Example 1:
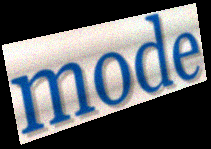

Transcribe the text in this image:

mode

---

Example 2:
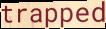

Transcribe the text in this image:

trapped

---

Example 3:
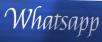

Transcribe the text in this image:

Whatsapp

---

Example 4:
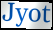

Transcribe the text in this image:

Jyot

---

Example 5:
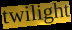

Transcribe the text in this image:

twilight